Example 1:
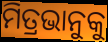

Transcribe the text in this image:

ମିତ୍ରଭାନୁକୁ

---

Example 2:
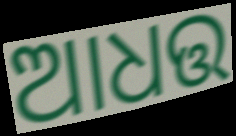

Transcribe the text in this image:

ଆଧତ୍ତ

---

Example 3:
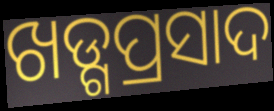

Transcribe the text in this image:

ଖଡ୍ଗପ୍ରସାଦ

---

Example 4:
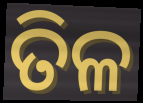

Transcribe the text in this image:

ତିଳ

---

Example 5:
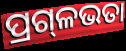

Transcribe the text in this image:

ପ୍ରଗ୍‍ଳଭତା